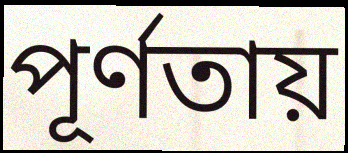
পূর্ণতায়